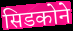
सिडकोने